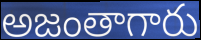
అజంతాగారు